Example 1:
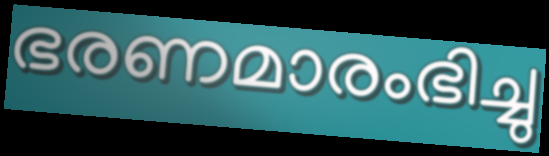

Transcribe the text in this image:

ഭരണമാരംഭിച്ചു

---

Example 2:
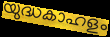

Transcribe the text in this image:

യുദ്ധകാഹളം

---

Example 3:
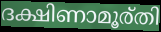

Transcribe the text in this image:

ദക്ഷിണാമൂര്തി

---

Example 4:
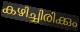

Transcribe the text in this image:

കഴിച്ചിരിക്കും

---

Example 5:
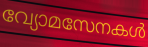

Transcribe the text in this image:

വ്യോമസേനകൾ